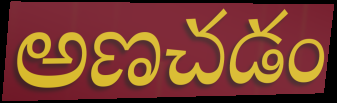
అణచడం